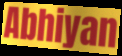
Abhiyan